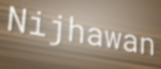
Nijhawan